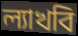
ল্যাখবি